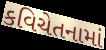
કવિચેતનામાં